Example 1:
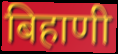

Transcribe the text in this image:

बिहाणी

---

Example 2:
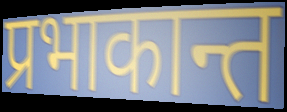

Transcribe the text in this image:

प्रभाकान्त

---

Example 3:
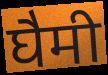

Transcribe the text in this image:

घैमी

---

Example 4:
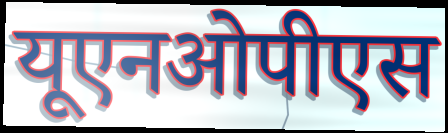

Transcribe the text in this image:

यूएनओपीएस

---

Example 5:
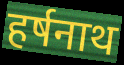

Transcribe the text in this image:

हर्षनाथ